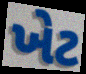
ખેટ